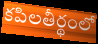
కపిలతీర్థంలో